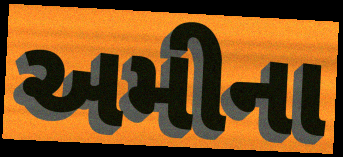
અમીના